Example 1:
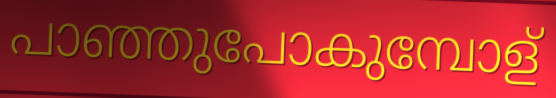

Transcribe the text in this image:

പാഞ്ഞുപോകുമ്പോള്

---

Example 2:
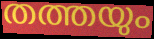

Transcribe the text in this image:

തത്തയും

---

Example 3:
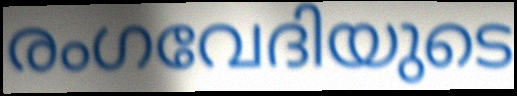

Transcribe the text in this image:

രംഗവേദിയുടെ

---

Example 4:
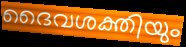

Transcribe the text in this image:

ദൈവശക്തിയും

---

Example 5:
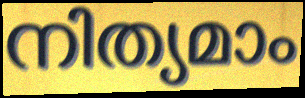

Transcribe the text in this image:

നിത്യമാം